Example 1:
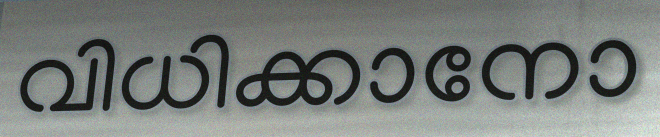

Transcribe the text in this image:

വിധിക്കാനോ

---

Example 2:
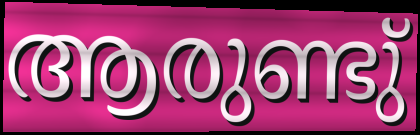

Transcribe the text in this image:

ആരുണ്ടു്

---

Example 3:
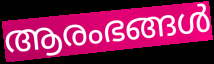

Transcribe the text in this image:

ആരംഭങ്ങൾ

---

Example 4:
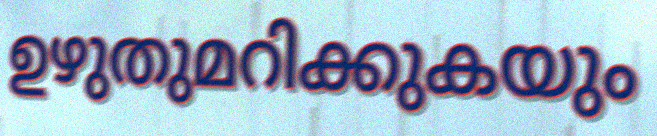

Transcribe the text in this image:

ഉഴുതുമറിക്കുകയും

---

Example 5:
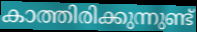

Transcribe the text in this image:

കാത്തിരിക്കുന്നുണ്ട്